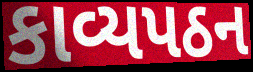
કાવ્યપઠન